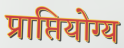
प्राप्तियोग्य